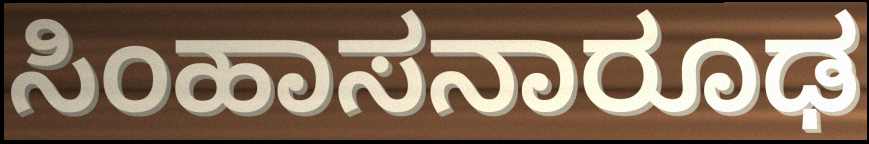
ಸಿಂಹಾಸನಾರೂಢ